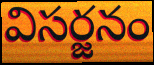
విసర్జనం